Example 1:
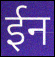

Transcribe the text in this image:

ईन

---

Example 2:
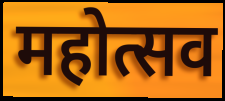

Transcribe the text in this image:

महोत्सव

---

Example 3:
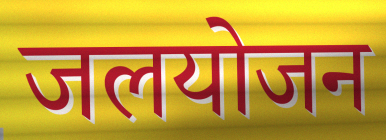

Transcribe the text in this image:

जलयोजन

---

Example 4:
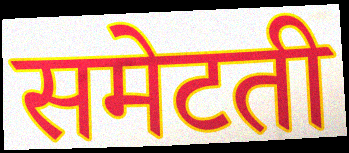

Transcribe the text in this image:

समेटती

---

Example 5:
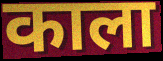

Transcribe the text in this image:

काला